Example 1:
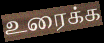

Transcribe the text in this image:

உரைக்க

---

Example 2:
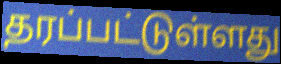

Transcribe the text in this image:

தரப்பட்டுள்ளது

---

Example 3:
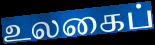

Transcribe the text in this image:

உலகைப்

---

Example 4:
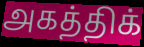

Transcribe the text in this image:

அகத்திக்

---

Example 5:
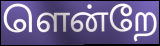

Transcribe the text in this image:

ளென்றே